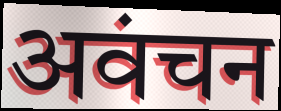
अवंचन